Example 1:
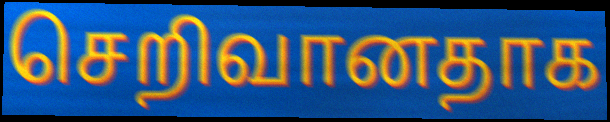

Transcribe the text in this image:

செறிவானதாக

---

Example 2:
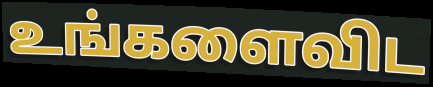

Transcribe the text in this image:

உங்களைவிட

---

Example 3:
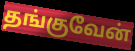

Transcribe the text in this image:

தங்குவேன்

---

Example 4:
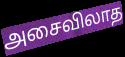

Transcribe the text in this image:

அசைவிலாத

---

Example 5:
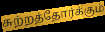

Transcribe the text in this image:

சுற்றத்தோர்க்கும்